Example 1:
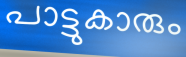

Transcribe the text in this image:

പാട്ടുകാരും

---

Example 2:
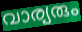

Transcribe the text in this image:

വാര്യരും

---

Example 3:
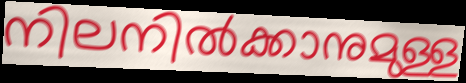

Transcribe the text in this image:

നിലനിൽക്കാനുമുള്ള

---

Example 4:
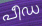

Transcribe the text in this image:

പീഡ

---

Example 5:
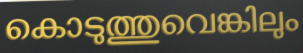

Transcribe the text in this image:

കൊടുത്തുവെങ്കിലും